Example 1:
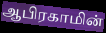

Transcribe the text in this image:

ஆபிரகாமின்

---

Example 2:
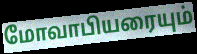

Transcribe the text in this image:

மோவாபியரையும்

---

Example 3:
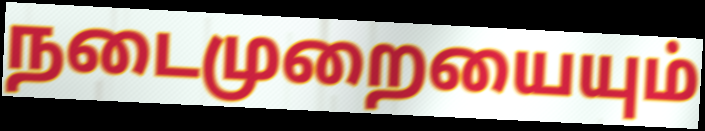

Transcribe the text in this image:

நடைமுறையையும்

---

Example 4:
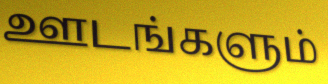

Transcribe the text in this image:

ஊடங்களும்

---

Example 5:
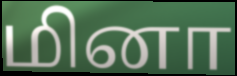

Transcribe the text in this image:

மினா